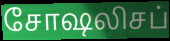
சோஷலிசப்